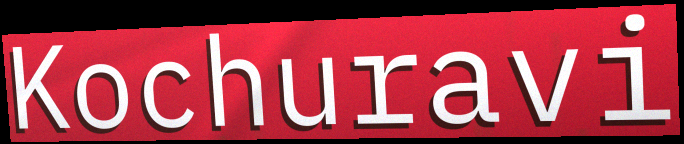
Kochuravi